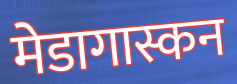
मेडागास्कन